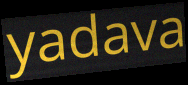
yadava